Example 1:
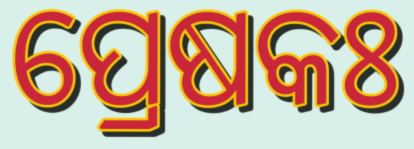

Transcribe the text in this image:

ପ୍ରେଷକଃ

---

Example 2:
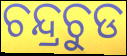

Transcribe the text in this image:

ଚନ୍ଦ୍ରଚୁଡ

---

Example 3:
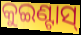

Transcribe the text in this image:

କୁଇଣ୍ଟାସ୍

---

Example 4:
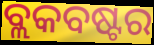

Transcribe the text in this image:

ବ୍ଲକବଷ୍ଟର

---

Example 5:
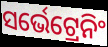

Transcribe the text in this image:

ସର୍ଭେଟ୍ରେନିଂ